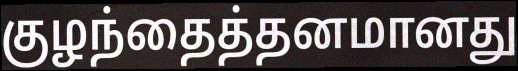
குழந்தைத்தனமானது